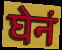
घेनं